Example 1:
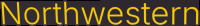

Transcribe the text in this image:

Northwestern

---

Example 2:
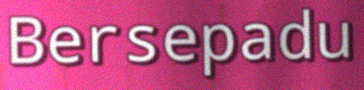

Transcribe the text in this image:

Bersepadu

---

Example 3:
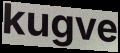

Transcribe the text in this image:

kugve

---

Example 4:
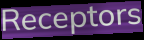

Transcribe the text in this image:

Receptors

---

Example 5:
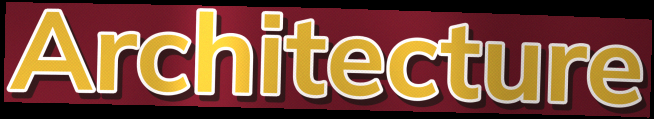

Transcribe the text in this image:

Architecture